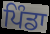
ਪਿੰਡਾ